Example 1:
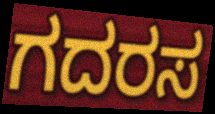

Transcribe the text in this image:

ಗದರಸ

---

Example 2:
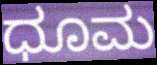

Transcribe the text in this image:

ಧೂಮ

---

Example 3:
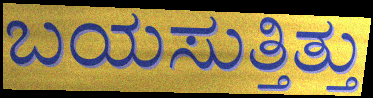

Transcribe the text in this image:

ಬಯಸುತ್ತಿತ್ತು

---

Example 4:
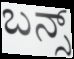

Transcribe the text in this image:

ಬನ್ಸ್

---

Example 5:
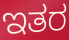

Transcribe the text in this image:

ಇತರ